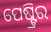
ପେଷ୍ଟ୍ରିର